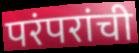
परंपरांची